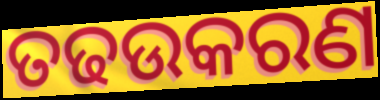
ତଢଉକରଣ